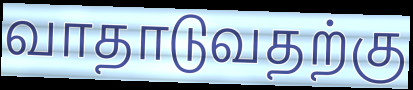
வாதாடுவதற்கு